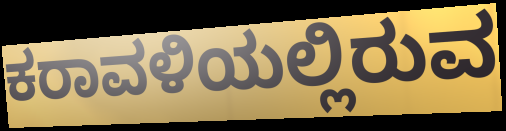
ಕರಾವಳಿಯಲ್ಲಿರುವ